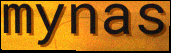
mynas